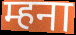
म्हना